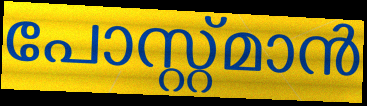
പോസ്റ്റ്മാൻ